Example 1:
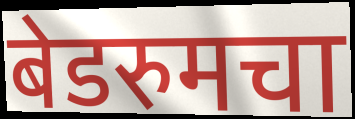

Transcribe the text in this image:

बेडरुमचा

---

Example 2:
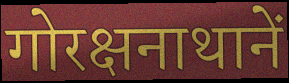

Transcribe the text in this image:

गोरक्षनाथानें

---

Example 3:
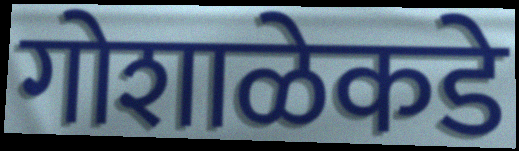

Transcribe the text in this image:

गोशाळेकडे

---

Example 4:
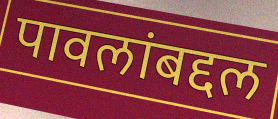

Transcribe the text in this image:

पावलांबद्दल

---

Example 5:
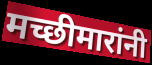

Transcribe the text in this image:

मच्छीमारांनी